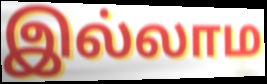
இல்லாம